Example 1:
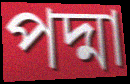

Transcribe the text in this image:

পদ্মা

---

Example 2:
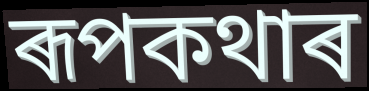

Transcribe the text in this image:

ৰূপকথাৰ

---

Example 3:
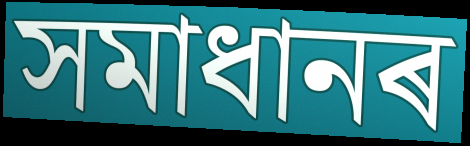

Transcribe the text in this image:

সমাধানৰ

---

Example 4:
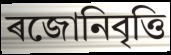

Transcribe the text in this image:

ৰজোনিবৃত্তি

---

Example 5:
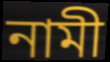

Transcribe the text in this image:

নামী